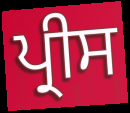
ਪ੍ਰੀਸ